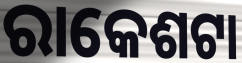
ରାକେଶଟା